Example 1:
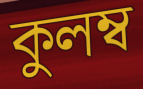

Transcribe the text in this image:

কুলম্ব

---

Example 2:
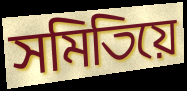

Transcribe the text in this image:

সমিতিয়ে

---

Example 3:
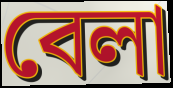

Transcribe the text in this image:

বেলা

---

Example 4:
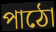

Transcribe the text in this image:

পাঠো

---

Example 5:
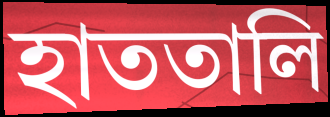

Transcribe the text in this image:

হাততালি